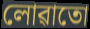
লোৱাতো